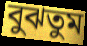
বুঝতুম